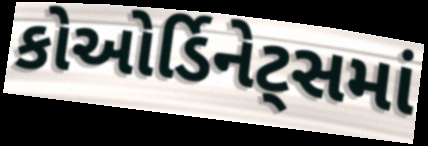
કોઓર્ડિનેટ્સમાં